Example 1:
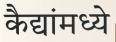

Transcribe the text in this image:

कैद्यांमध्ये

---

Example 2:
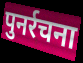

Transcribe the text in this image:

पुनर्रचना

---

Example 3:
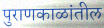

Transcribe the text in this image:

पुराणकाळांतील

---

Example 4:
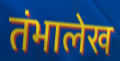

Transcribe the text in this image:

तंभालेख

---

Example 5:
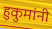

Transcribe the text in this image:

हुकुमांनी